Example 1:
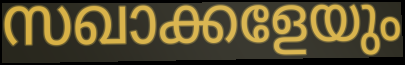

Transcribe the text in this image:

സഖാക്കളേയും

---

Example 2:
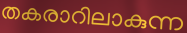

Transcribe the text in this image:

തകരാറിലാകുന്ന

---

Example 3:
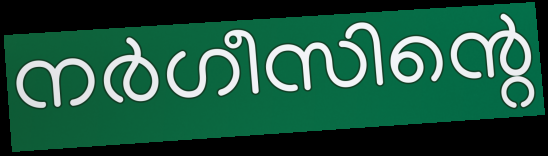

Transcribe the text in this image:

നർഗീസിന്റെ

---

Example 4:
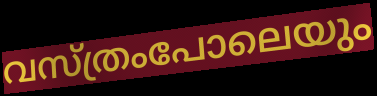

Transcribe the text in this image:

വസ്ത്രംപോലെയും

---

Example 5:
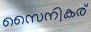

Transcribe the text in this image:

സൈനികര്